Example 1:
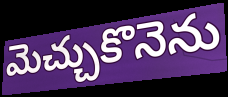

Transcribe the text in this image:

మెచ్చుకొనెను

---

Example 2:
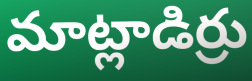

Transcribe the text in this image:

మాట్లాడిర్రు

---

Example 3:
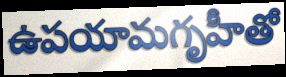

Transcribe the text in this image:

ఉపయామగృహీతో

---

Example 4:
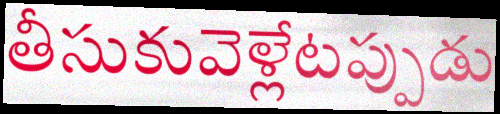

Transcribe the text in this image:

తీసుకువెళ్లేటప్పుడు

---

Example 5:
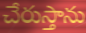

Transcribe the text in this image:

చేరుస్తాను